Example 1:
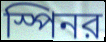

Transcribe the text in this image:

স্পিনর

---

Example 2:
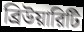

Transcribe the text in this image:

ব্রিউয়ারিটি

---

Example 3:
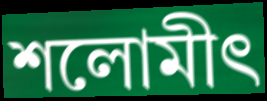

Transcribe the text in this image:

শলোমীৎ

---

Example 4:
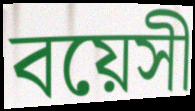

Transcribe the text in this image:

বয়েসী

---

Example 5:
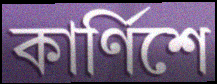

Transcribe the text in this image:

কার্ণিশে